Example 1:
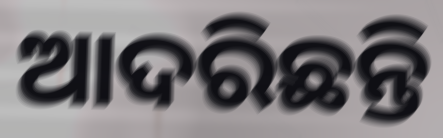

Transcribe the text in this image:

ଆଦରିଛନ୍ତି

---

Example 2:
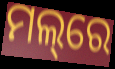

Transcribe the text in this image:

ମଲ୍‌ରେ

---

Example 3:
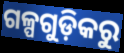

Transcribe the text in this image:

ଗଳ୍ପଗୁଡ଼ିକରୁ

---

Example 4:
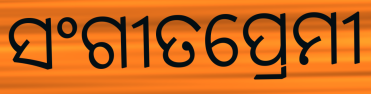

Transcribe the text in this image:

ସଂଗୀତପ୍ରେମୀ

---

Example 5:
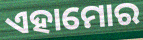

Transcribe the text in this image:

ଏହାମୋର